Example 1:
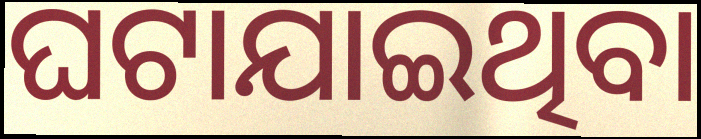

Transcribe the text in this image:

ଘଟାଯାଇଥିବା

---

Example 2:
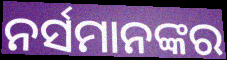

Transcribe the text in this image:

ନର୍ସମାନଙ୍କର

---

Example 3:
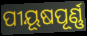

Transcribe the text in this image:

ପୀୟୂଷପୂର୍ଣ୍ଣ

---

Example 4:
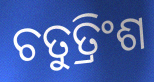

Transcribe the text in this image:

ଚତୁତ୍ରିଂଶ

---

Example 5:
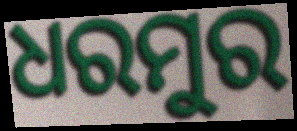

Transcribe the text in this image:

ଧରମୁର